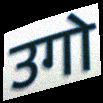
उगो